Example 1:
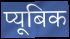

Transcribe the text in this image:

प्यूबिक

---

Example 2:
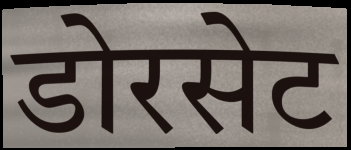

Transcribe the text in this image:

डोरसेट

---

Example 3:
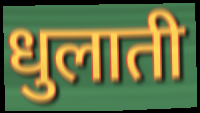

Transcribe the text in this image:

धुलाती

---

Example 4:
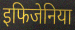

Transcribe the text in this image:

इफिजेनिया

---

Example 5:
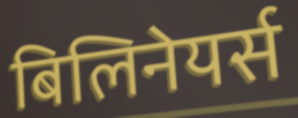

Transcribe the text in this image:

बिलिनेयर्स